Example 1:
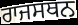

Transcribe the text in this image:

ਰਾਜਸਥਨ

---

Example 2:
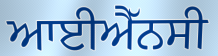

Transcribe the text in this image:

ਆਈਐੱਨਸੀ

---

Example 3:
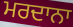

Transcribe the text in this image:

ਮਰਦਾਨਾ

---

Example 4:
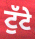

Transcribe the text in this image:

ਟੁੱਟੇ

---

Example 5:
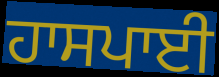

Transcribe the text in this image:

ਹਾਸਪਾਈ